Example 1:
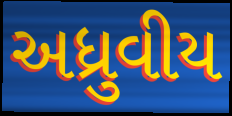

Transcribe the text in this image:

અધ્રુવીય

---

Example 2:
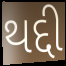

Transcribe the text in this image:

થદ્દી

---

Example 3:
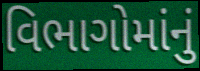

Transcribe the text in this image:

વિભાગોમાંનું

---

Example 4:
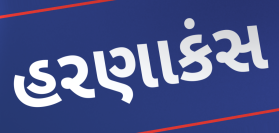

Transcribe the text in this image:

હરણાકંસ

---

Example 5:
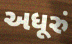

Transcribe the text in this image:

અધૂરું